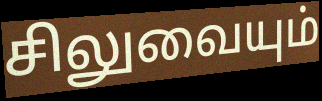
சிலுவையும்